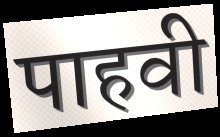
पाहवी